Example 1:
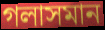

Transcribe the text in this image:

গলাসমান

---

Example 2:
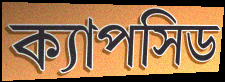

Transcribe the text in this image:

ক্যাপসিড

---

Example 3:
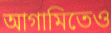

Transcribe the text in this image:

আগামিতেও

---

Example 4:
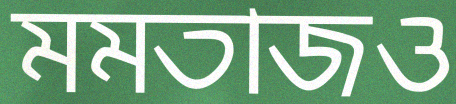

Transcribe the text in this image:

মমতাজও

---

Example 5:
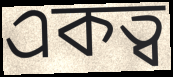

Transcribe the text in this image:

একত্ব